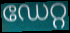
ഡേറ്റ